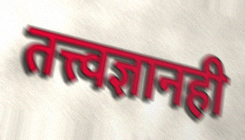
तत्त्वज्ञानही